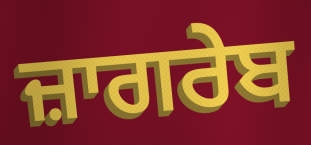
ਜ਼ਾਗਰੇਬ